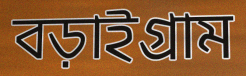
বড়াইগ্রাম